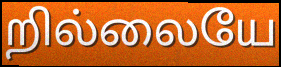
றில்லையே